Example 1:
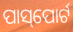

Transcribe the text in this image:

ପାସ୍‌ପୋର୍ଟ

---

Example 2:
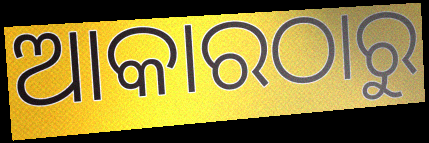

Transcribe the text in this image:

ଆକାରଠାରୁ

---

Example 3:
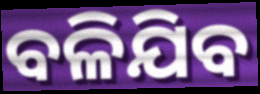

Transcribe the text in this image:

ବଳିଯିବ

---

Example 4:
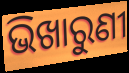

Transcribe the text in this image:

ଭିଖାରୁଣୀ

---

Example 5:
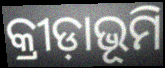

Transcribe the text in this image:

କ୍ରୀଡ଼ାଭୂମି